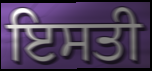
ਇਸਤੀ